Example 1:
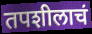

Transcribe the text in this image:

तपशीलाचं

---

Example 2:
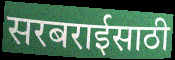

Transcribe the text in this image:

सरबराईसाठी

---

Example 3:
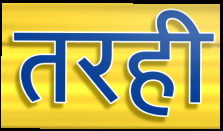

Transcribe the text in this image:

तरही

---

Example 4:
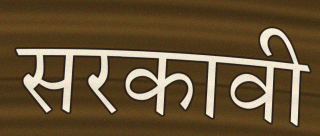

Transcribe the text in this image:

सरकावी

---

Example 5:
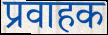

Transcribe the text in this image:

प्रवाहक